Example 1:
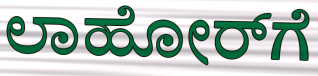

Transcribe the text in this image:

ಲಾಹೋರ್‌ಗೆ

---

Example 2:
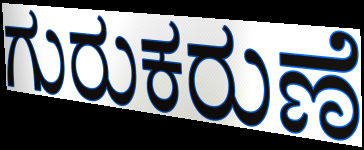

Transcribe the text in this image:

ಗುರುಕರುಣೆ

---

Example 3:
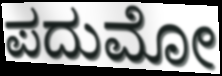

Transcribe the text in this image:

ಪದುಮೋ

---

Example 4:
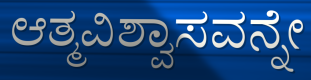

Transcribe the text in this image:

ಆತ್ಮವಿಶ್ವಾಸವನ್ನೇ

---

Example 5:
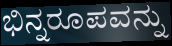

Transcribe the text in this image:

ಭಿನ್ನರೂಪವನ್ನು